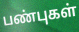
பண்புகள்